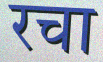
रचा